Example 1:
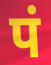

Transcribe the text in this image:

पं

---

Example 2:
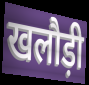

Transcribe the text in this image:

खलौड़ी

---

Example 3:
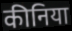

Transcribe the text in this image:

कीनिया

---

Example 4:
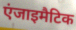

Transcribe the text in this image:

एंजाइमैटिक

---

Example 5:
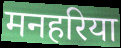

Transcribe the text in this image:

मनहरिया